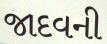
જાદવની